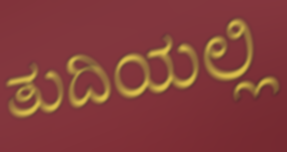
ತುದಿಯಲ್ಲಿ